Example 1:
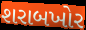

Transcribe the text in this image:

શરાબખોર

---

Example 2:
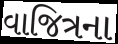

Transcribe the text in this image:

વાજિત્રના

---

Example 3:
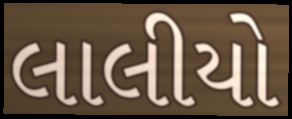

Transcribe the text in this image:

લાલીયો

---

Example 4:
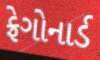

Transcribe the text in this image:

ફ્રેગોનાર્ડ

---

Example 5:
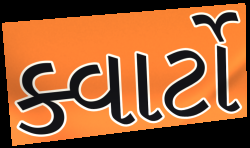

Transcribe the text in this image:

ક્વાર્ટો